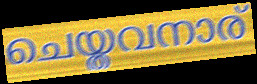
ചെയ്തവനാര്